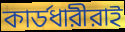
কার্ডধারীরাই